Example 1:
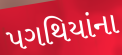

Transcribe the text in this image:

પગથિયાંના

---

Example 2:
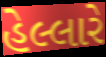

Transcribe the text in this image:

હેલ્લારે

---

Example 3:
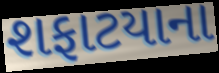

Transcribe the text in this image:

શફાટયાના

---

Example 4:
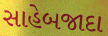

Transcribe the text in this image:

સાહેબજાદા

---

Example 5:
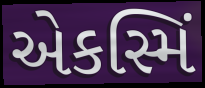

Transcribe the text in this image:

એકસ્મિં